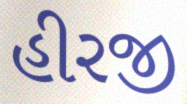
હીરજી